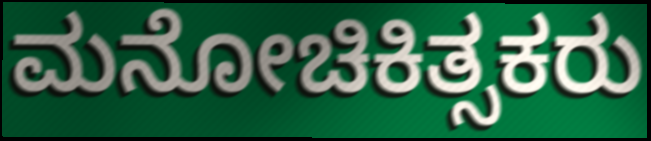
ಮನೋಚಿಕಿತ್ಸಕರು